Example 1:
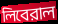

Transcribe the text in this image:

লিবেরাল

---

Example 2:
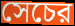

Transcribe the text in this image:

সেচের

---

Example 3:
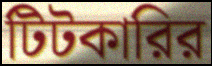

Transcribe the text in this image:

টিটকারির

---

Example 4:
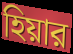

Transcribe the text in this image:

হিয়ার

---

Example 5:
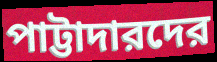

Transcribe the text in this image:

পাট্টাদারদের